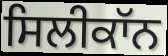
ਸਿਲੀਕਾੱਨ